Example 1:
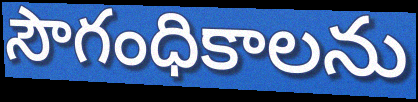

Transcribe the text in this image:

సౌగంధికాలను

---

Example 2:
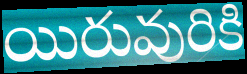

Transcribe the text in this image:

యిరువురికి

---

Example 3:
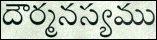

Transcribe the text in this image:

దౌర్మనస్యము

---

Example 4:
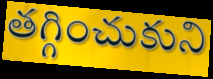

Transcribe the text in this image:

తగ్గించుకుని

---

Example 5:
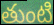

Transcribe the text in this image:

తుంటి